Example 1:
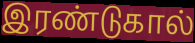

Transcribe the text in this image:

இரண்டுகால்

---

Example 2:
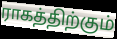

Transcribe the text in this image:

ராகத்திற்கும்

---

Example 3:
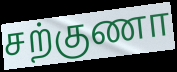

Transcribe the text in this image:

சற்குணா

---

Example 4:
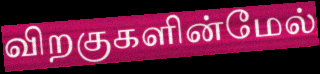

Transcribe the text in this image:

விறகுகளின்மேல்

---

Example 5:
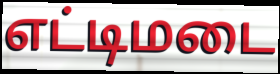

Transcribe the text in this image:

எட்டிமடை